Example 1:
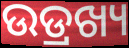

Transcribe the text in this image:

ଉଡ୍ରଖ୍ୟ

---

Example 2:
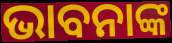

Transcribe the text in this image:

ଭାବନାଙ୍କ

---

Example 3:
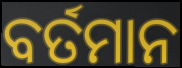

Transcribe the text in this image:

ବର୍ତମାନ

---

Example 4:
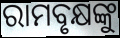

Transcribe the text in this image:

ରାମବୃକ୍ଷଙ୍କୁ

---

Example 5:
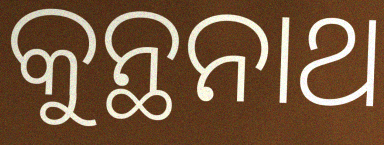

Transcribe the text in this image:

କୁନ୍ଥନାଥ